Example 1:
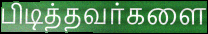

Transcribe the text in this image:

பிடித்தவர்களை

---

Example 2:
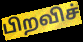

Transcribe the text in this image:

பிறவிச்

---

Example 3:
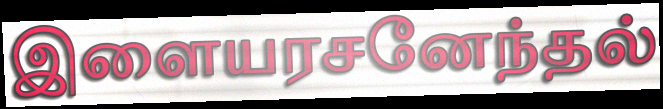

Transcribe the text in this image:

இளையரசனேந்தல்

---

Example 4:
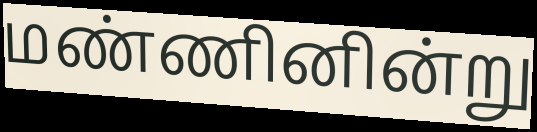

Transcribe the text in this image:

மண்ணினின்று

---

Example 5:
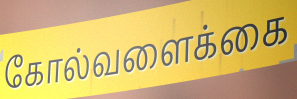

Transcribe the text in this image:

கோல்வளைக்கை